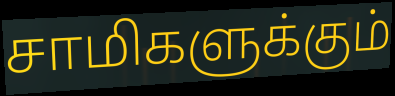
சாமிகளுக்கும்